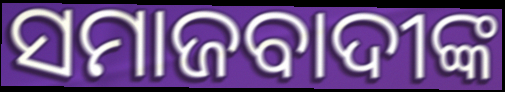
ସମାଜବାଦୀଙ୍କ